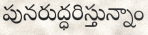
పునరుద్ధరిస్తున్నాం